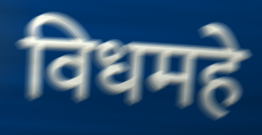
विधमहे